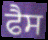
ਫੈਸ